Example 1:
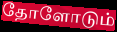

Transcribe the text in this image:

தோளோடும்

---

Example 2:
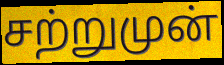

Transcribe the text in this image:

சற்றுமுன்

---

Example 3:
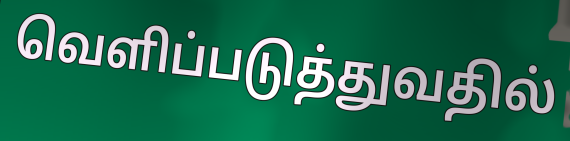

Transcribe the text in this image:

வெளிப்படுத்துவதில்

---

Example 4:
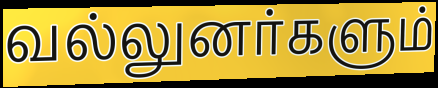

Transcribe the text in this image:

வல்லுனர்களும்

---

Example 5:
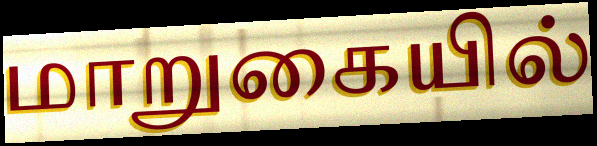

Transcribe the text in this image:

மாறுகையில்